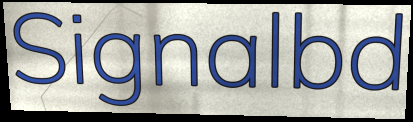
Signalbd